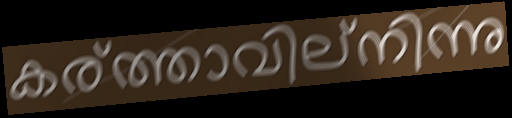
കര്ത്താവില്നിന്നു